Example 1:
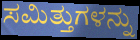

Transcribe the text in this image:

ಸಮಿತ್ತುಗಳನ್ನು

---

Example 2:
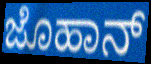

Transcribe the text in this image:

ಜೊಹಾನ್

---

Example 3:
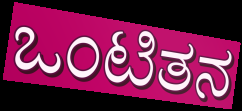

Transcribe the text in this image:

ಒಂಟಿತನ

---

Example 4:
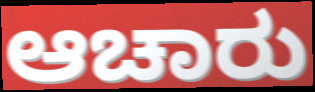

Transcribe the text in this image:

ಆಚಾರು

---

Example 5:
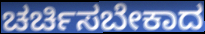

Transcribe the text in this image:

ಚರ್ಚಿಸಬೇಕಾದ